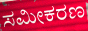
ಸಮೀಕರಣ